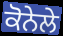
ਕੋਨੇਲੇ